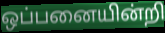
ஒப்பனையின்றி